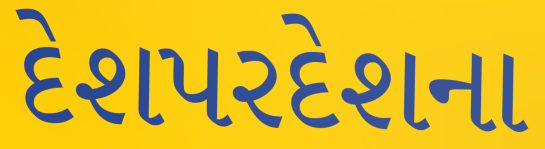
દેશપરદેશના